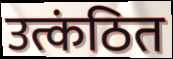
उत्कंठित